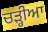
ਚੜ੍ਹੀਆ